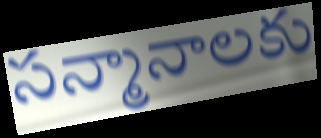
సన్మానాలకు